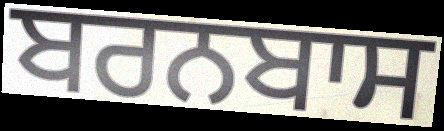
ਬਰਨਬਾਸ